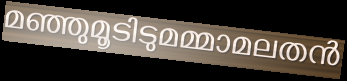
മഞ്ഞുമൂടിടുമമ്മാമലതൻ